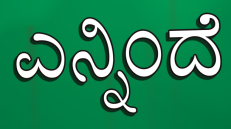
ಎನ್ನಿಂದೆ